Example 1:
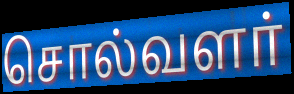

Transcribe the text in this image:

சொல்வளர்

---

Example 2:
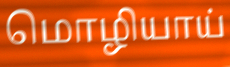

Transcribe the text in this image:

மொழியாய்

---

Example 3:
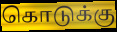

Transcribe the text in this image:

கொடுக்கு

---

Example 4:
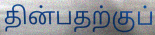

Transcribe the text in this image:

தின்பதற்குப்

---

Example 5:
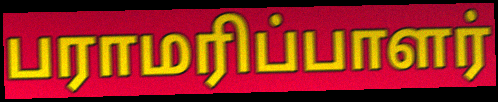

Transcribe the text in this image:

பராமரிப்பாளர்